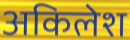
अकिलेश